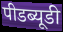
पीडब्यूडी